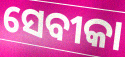
ସେବୀକା